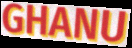
GHANU